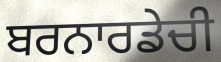
ਬਰਨਾਰਡੇਚੀ